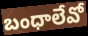
బంధాలేవో